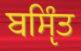
ਬਸੵਿੰਤ